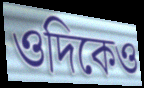
ওদিকেও